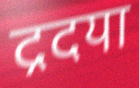
द्रदया